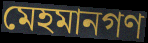
মেহমানগণ